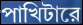
পাখিটারে